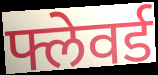
फ्लेवर्ड